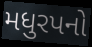
મધુરપનો